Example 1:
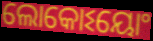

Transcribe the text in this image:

ଲୋକୋଽୟୋଂ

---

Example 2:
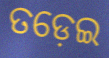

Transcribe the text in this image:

ତଡ଼େଇ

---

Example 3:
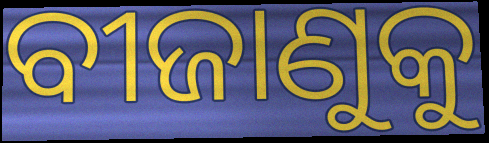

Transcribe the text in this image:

ବୀଜାଣୁକୁ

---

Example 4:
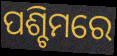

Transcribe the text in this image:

ପଶ୍ଚିମରେ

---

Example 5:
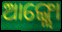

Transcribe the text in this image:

ଆଙ୍ଗ୍ଲୋ